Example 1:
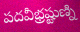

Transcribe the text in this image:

పదవీభ్రష్టుణ్ని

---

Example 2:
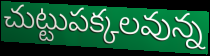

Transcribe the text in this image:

చుట్టుపక్కలవున్న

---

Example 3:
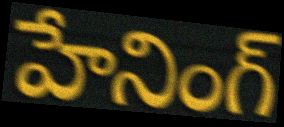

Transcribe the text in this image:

హేనింగ్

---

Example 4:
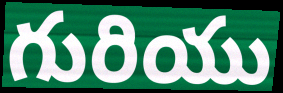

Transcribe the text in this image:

గురియు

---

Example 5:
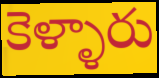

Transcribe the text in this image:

కెళ్ళారు